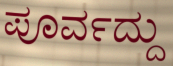
ಪೂರ್ವದ್ದು